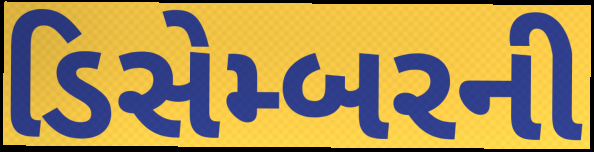
ડિસેમ્બરની